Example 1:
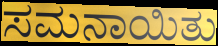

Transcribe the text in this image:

ಸಮನಾಯಿತು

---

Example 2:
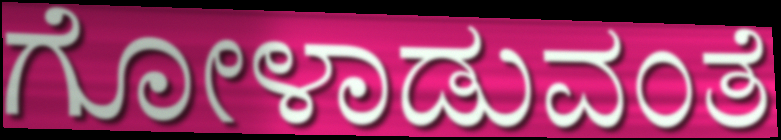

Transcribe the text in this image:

ಗೋಳಾಡುವಂತೆ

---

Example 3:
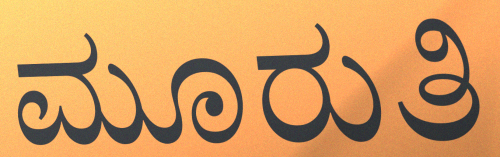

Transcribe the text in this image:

ಮೂರುತಿ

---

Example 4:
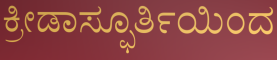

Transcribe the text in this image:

ಕ್ರೀಡಾಸ್ಫೂರ್ತಿಯಿಂದ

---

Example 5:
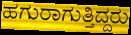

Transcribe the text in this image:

ಹಗುರಾಗುತ್ತಿದ್ದರು